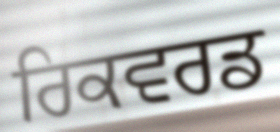
ਰਿਕਵਰਡ